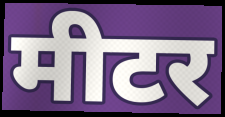
मीटर